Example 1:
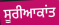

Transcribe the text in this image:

ਸੂਰੀਆਕਾਂਤ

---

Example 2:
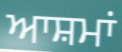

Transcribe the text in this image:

ਆਸ਼ਮਾਂ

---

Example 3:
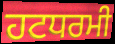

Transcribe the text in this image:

ਹਟਧਰਮੀ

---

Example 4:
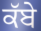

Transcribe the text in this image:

ਕੱਬੇ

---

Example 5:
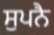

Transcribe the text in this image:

ਸੁਪਨੈ